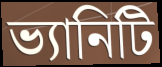
ভ্যানিটি